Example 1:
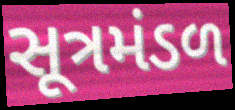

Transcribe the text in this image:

સૂત્રમંડળ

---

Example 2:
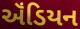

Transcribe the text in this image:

ઍંડિયન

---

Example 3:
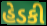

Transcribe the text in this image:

હેડકી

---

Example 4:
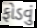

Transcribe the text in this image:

ફોડવું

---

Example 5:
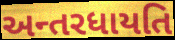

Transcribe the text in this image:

અન્તરધાયતિ